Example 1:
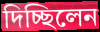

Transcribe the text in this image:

দিচ্ছিলেন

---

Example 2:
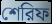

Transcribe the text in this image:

শেরিফ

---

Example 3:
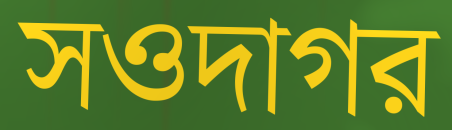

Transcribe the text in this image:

সওদাগর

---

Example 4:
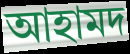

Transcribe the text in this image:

আহামদ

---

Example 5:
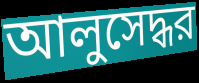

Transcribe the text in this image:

আলুসেদ্ধর